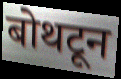
बोथटून